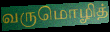
வருமொழித்